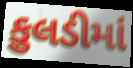
કુલડીમાં